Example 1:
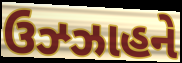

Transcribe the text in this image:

ઉઝ્ઝાહને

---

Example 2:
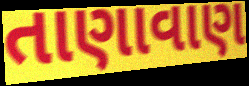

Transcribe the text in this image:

તાણાવાણ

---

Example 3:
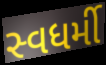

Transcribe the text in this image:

સ્વધર્મી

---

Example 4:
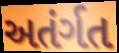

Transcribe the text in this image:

અતંર્ગત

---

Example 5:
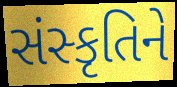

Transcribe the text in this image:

સંસ્કૃતિને